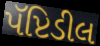
પૅપ્ટિડીલ